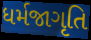
ધર્મજાગૃતિ